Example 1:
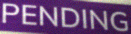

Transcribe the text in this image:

PENDING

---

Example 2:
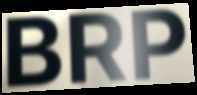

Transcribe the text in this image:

BRP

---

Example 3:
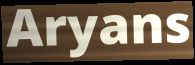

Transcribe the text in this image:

Aryans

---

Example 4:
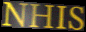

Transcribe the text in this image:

NHIS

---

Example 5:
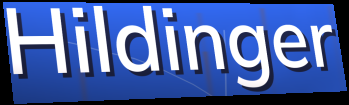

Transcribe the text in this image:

Hildinger